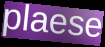
plaese